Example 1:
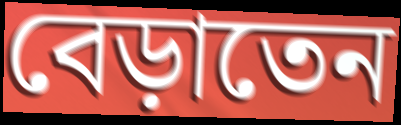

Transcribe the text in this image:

বেড়াতেন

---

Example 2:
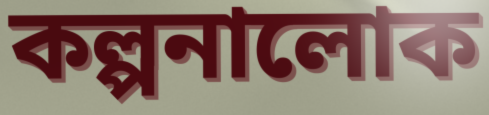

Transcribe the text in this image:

কল্পনালোক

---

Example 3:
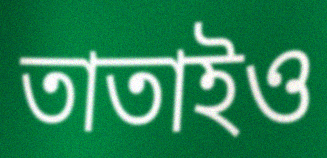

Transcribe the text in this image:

তাতাইও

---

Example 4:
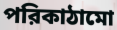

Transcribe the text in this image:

পরিকাঠামো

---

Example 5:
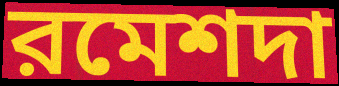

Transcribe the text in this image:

রমেশদা